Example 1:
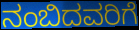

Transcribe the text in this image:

ನಂಬಿದವರಿಗೆ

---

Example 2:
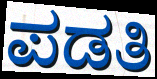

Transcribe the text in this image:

ಪಡತಿ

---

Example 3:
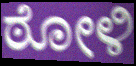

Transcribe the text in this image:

ಠೋಳಿ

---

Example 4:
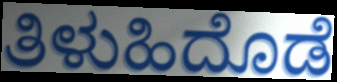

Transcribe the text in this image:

ತಿಳುಹಿದೊಡೆ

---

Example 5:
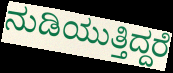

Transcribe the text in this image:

ನುಡಿಯುತ್ತಿದ್ದರೆ